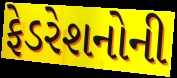
ફેડરેશનોની